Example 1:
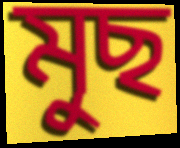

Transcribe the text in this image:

মুছ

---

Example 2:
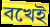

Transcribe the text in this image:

বখেই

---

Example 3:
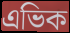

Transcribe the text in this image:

এভিক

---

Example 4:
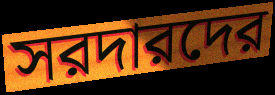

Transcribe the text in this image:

সরদারদের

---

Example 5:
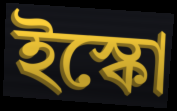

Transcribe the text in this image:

ইস্কো